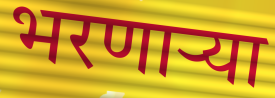
भरणाऱ्या